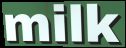
milk